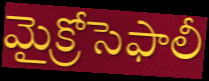
మైక్రోసెఫాలీ